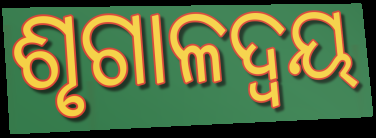
ଶୃଗାଳଦ୍ୱୟ